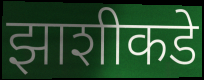
झाशीकडे